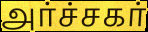
அர்ச்சகர்